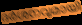
ദർശനവുമായി